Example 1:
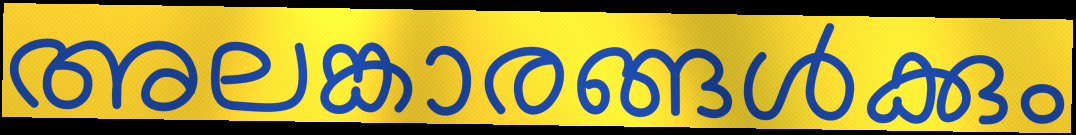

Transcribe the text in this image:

അലങ്കാരങ്ങൾക്കും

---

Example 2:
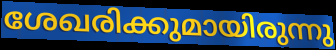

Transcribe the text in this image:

ശേഖരിക്കുമായിരുന്നു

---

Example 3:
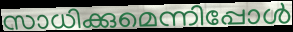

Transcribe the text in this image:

സാധിക്കുമെന്നിപ്പോൾ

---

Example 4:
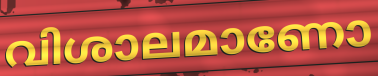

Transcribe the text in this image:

വിശാലമാണോ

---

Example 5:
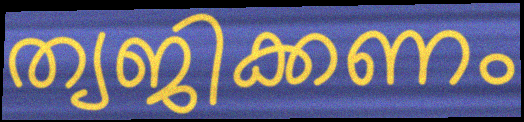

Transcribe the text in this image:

ത്യജിക്കണം